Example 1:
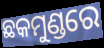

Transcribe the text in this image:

ଛକମୁଣ୍ଡରେ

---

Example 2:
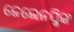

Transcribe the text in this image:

ଜେଲେନସ୍କିଙ୍କ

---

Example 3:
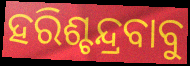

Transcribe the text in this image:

ହରିଶ୍ଚନ୍ଦ୍ରବାବୁ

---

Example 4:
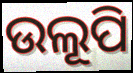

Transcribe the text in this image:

ଉଲୂପି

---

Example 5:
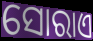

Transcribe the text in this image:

ସୋରାଏ